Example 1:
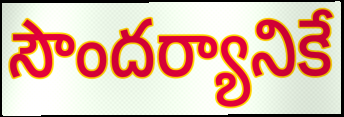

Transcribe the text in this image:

సౌందర్యానికే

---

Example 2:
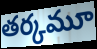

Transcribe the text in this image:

తర్కమూ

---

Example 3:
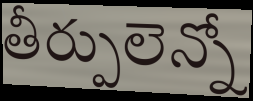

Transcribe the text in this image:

తీర్పులెన్నో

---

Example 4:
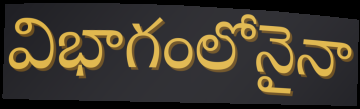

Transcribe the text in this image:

విభాగంలోనైనా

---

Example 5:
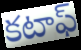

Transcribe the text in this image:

కటాఫ్